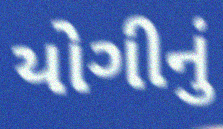
યોગીનું